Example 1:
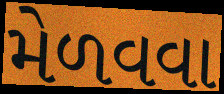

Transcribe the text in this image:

મેળવવા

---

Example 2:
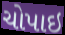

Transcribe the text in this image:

ચોપાઇ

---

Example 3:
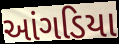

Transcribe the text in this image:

આંગડિયા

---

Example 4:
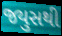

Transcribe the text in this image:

જ્યુસથી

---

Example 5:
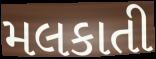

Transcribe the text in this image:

મલકાતી